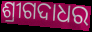
ଶ୍ରୀଗଦାଧର